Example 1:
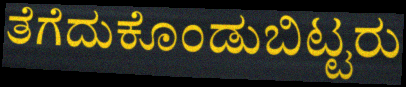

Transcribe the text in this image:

ತೆಗೆದುಕೊಂಡುಬಿಟ್ಟರು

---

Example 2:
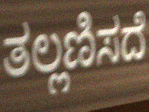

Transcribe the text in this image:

ತಲ್ಲಣಿಸದೆ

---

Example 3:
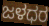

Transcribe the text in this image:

ಜಳಧರ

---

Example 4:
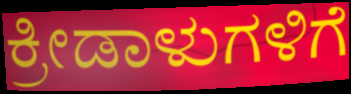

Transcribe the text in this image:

ಕ್ರೀಡಾಳುಗಳಿಗೆ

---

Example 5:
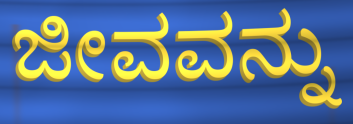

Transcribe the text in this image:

ಜೀವವನ್ನು